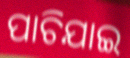
ପାଚିଯାଇ